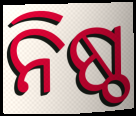
ନିଷ୍ଠ